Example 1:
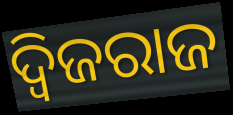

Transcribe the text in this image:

ଦ୍ୱିଜରାଜ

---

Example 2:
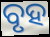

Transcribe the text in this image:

ବୃହ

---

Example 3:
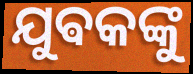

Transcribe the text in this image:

ଯୁଵକଙ୍କୁ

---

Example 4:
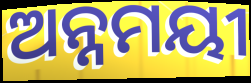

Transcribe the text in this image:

ଅନ୍ନମୟୀ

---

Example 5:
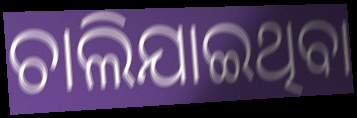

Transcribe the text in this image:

ଚାଲିଯାଇଥିବା